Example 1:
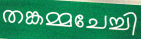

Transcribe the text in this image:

തങ്കമ്മചേച്ചി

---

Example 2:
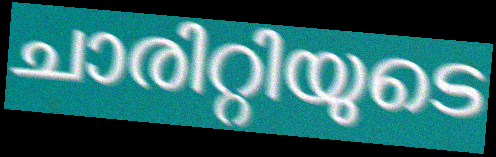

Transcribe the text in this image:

ചാരിറ്റിയുടെ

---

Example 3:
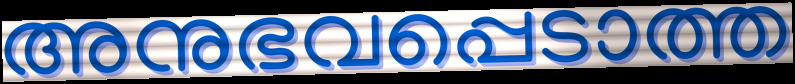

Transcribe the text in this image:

അനുഭവപ്പെടാത്ത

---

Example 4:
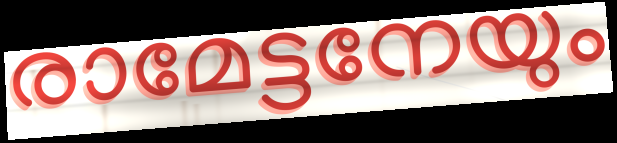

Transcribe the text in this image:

രാമേട്ടനേയും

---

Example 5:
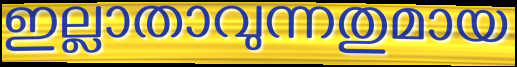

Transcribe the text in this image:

ഇല്ലാതാവുന്നതുമായ